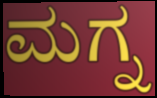
ಮಗ್ನ